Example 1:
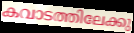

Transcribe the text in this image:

കവാടത്തിലേക്കു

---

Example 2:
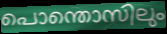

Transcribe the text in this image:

പൊന്തൊസിലും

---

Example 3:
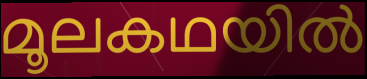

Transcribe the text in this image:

മൂലകഥയിൽ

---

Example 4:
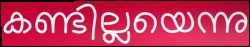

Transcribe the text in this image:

കണ്ടില്ലയെന്നു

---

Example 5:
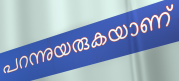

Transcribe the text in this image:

പറന്നുയരുകയാണ്